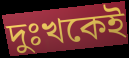
দুঃখকেই